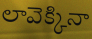
లావెక్కినా